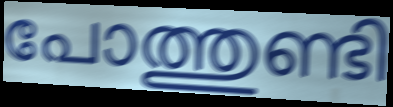
പോത്തുണ്ടി